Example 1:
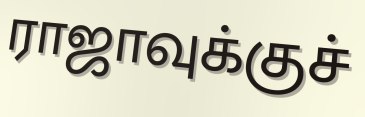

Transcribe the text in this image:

ராஜாவுக்குச்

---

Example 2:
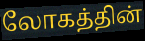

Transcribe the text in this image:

லோகத்தின்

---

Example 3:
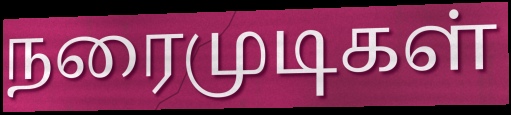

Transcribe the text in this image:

நரைமுடிகள்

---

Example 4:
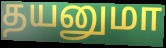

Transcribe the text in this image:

தயனுமா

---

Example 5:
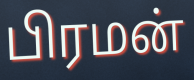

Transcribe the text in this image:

பிரமன்